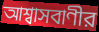
আশ্বাসবাণীর